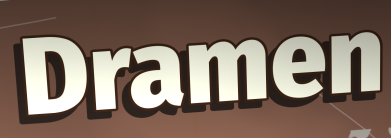
Dramen